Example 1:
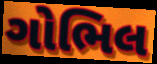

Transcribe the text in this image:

ગોભિલ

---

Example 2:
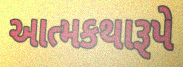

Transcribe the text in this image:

આત્મકથારૂપે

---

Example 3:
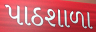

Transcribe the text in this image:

પાઠશાળા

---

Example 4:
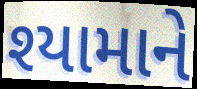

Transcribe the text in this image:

શ્યામાને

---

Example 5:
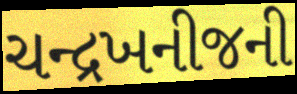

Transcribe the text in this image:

ચન્દ્રખનીજની